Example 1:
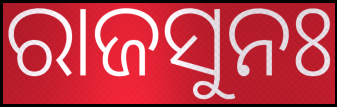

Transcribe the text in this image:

ରାଜସୁନଃ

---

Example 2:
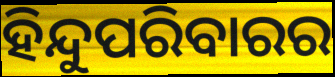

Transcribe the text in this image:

ହିନ୍ଦୁପରିବାରର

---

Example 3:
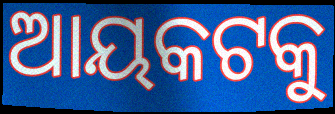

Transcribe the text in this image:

ଆୟକଟକୁ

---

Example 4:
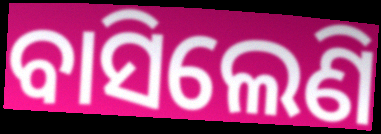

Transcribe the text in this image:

ବାସିଲେଣି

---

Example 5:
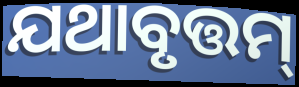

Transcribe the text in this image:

ଯଥାବୃତ୍ତମ୍